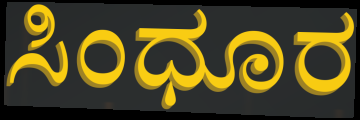
ಸಿಂಧೂರ